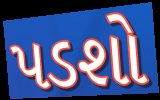
પડશો